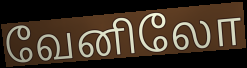
வேனிலோ